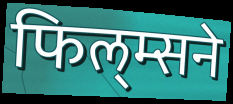
फिल्म्सने